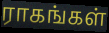
ராகங்கள்